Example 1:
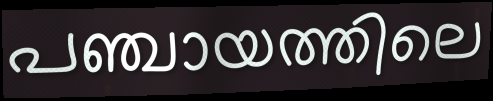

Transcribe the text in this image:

പഞ്ചായത്തിലെ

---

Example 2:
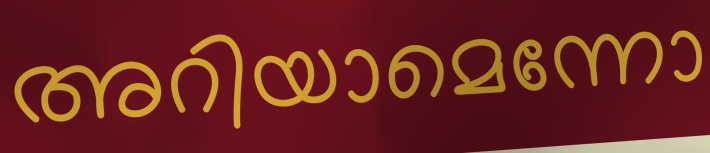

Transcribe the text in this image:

അറിയാമെന്നോ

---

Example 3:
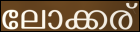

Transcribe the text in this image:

ലോക്കര്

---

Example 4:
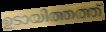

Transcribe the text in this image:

ഉടായിത്തത്ത്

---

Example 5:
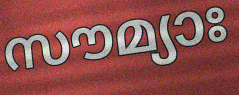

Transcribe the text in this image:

സൗമ്യാഃ